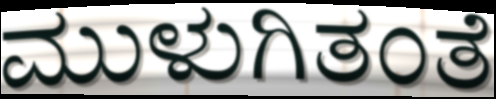
ಮುಳುಗಿತಂತೆ